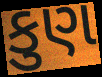
કુણ